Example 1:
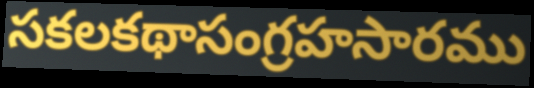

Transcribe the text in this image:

సకలకథాసంగ్రహసారము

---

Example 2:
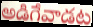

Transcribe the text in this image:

అడిగేవాడట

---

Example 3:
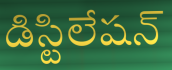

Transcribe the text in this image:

డిస్టిలేషన్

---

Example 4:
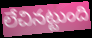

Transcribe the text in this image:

లేచినట్టుంది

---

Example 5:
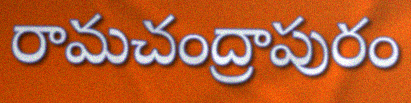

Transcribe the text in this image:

రామచంద్రాపురం